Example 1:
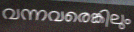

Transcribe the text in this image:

വന്നവരെങ്കിലും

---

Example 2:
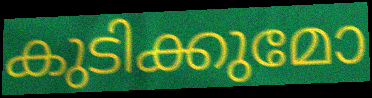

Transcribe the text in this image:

കുടിക്കുമോ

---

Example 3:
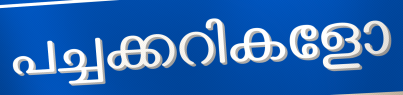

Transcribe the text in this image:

പച്ചക്കറികളോ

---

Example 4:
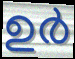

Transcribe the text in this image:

ഉർ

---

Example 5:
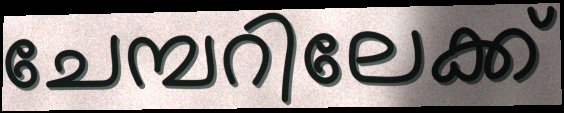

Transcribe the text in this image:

ചേമ്പറിലേക്ക്